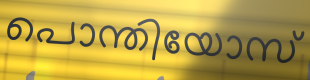
പൊന്തിയോസ്